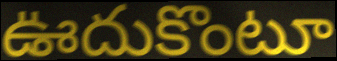
ఊదుకొంటూ